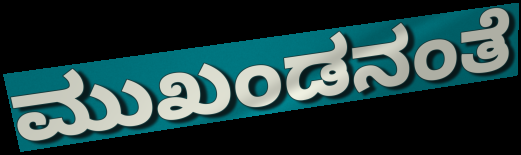
ಮುಖಂಡನಂತೆ